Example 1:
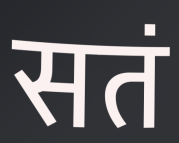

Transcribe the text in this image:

सतं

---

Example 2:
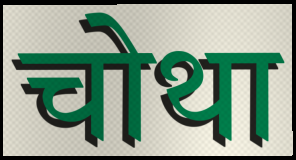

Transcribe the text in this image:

चोथा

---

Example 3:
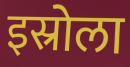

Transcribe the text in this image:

इस्रोला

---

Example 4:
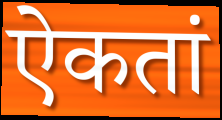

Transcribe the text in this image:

ऐकतां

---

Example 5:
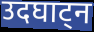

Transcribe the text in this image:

उदघाट्न